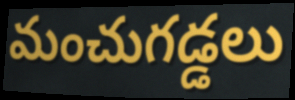
మంచుగడ్డలు